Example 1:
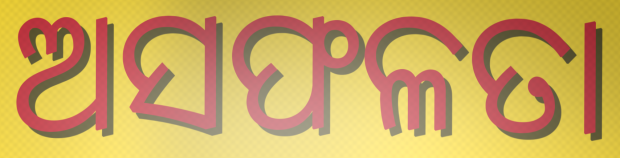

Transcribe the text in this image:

ଅସଫଳତା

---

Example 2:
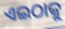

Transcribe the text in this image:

ଏଇଠାକୁ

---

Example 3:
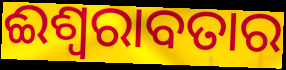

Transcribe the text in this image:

ଈଶ୍ୱରାବତାର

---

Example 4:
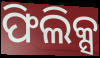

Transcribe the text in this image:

ଫିଲିକ୍ସ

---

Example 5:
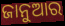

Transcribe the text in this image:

ଜାନୁଆର